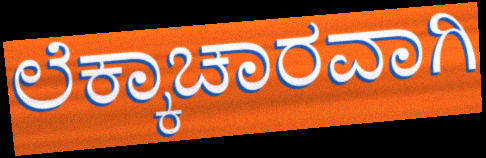
ಲೆಕ್ಕಾಚಾರವಾಗಿ